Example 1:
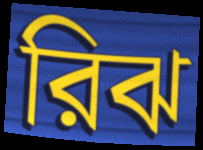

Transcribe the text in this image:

রিঝ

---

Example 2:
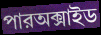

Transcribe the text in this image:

পারঅক্সাইড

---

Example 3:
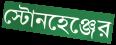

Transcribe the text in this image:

স্টোনহেঞ্জের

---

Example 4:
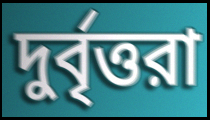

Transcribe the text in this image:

দুর্বৃত্তরা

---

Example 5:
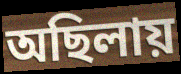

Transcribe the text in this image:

অছিলায়